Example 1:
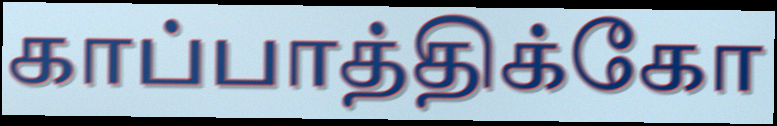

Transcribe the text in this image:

காப்பாத்திக்கோ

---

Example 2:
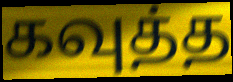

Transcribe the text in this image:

கவுத்த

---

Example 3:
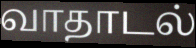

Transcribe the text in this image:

வாதாடல்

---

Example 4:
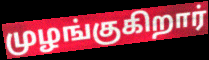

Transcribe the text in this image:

முழங்குகிறார்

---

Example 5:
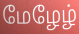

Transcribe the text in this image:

மேழேழ்